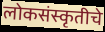
लोकसंस्कृतीचे